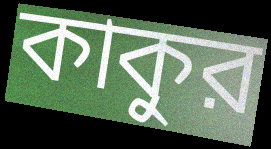
কাকুর